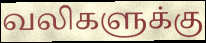
வலிகளுக்கு